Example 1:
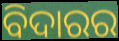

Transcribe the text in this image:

ବିଦାରର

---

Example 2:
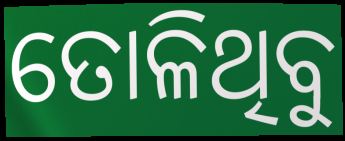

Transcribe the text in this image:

ତୋଳିଥିବୁ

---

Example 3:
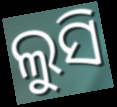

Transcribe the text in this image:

ଲୁସି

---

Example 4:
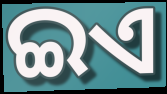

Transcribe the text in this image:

ଇଏ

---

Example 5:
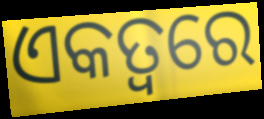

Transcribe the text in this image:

ଏକତ୍ୱରେ